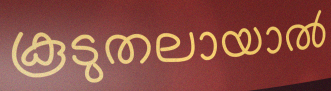
കൂടുതലായാൽ